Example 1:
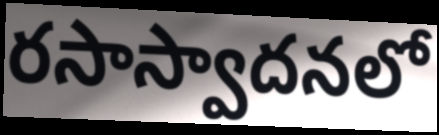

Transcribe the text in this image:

రసాస్వాదనలో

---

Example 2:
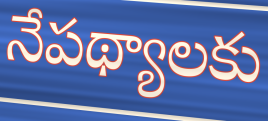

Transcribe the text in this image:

నేపథ్యాలకు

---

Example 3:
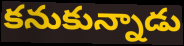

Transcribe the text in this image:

కనుకున్నాడు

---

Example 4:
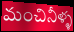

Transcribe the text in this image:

మంచినీళ్ళ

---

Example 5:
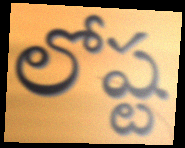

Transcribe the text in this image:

లోష్ట